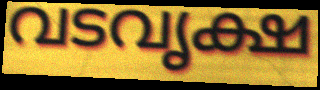
വടവൃക്ഷ